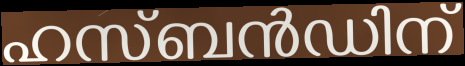
ഹസ്ബൻഡിന്